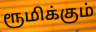
ரூமிக்கும்